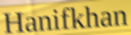
Hanifkhan